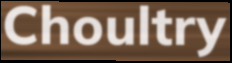
Choultry